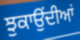
ਝੁਕਾਉਂਦੀਆਂ